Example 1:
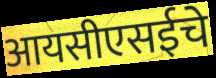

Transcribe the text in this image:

आयसीएसईचे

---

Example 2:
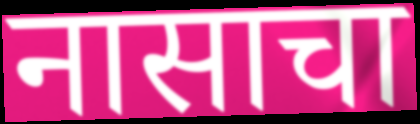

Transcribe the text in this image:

नासाचा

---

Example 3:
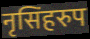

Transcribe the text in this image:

नृसिंहरुप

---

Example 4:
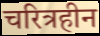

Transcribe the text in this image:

चरित्रहीन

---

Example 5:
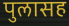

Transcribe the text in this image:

पुलासह